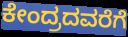
ಕೇಂದ್ರದವರೆಗೆ